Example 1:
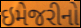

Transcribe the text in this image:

ઇમેજરીનો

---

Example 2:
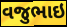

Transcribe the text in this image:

વજુભાઇ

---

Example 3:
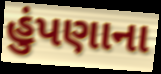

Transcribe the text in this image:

હુંપણાના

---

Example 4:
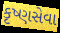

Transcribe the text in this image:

કૃષ્ણસેવા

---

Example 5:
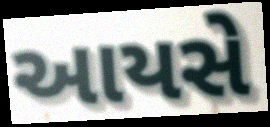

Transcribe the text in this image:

આયસે